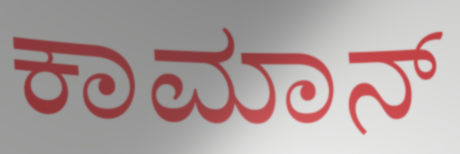
ಕಾಮಾನ್